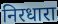
निरधारा